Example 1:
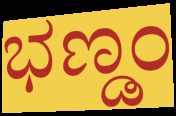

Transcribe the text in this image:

ಭಣ್ಡಂ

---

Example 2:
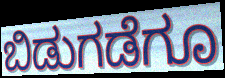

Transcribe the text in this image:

ಬಿಡುಗಡೆಗೂ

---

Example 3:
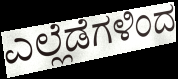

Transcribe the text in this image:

ಎಲ್ಲೆಡೆಗಳಿಂದ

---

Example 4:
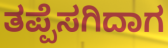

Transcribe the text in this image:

ತಪ್ಪೆಸಗಿದಾಗ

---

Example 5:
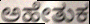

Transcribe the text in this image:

ಅಹೇತುಕ